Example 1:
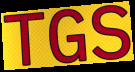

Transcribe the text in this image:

TGS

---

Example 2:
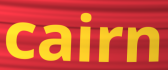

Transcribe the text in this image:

cairn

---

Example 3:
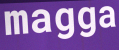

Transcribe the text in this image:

magga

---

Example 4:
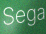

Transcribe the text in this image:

Sega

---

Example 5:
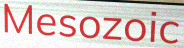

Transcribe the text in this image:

Mesozoic